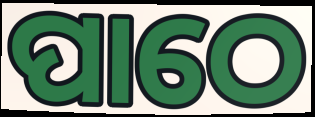
ପାଠେ